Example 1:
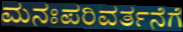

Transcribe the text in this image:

ಮನಃಪರಿವರ್ತನೆಗೆ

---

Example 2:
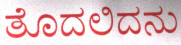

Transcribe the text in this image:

ತೊದಲಿದನು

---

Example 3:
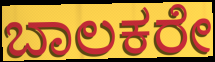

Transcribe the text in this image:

ಬಾಲಕರೇ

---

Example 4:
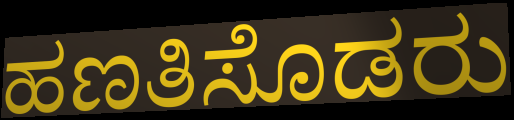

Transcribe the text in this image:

ಹಣತಿಸೊಡರು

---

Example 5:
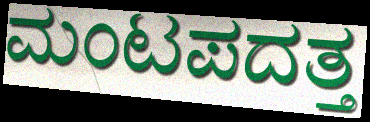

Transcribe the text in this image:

ಮಂಟಪದತ್ತ